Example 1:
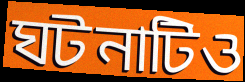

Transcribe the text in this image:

ঘটনাটিও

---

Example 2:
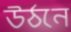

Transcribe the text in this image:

উঠনে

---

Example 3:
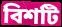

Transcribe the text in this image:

বিশটি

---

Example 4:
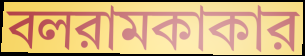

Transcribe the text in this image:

বলরামকাকার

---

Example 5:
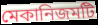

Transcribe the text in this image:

মেকানিজমটি